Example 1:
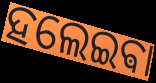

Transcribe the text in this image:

ହଲେଇଵା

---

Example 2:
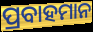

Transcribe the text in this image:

ପ୍ରବାହମାନ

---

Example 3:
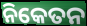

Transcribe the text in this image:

ନିକେତନ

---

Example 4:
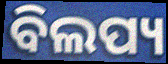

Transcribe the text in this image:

ବିଲପ୍ୟ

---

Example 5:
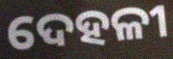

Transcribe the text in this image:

ଦେହଳୀ